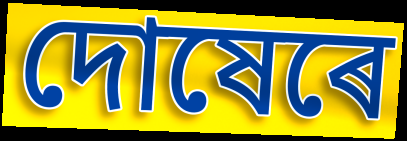
দোষেৰে